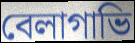
বেলাগাভি